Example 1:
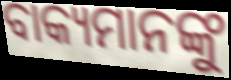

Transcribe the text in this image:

ବାକ୍ୟମାନଙ୍କୁ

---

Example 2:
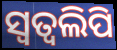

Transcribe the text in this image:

ସ୍ୱତ୍ୱଲିପି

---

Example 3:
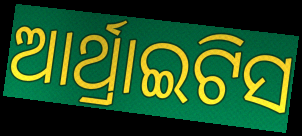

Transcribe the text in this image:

ଆର୍ଥ୍ରାଇଟିସ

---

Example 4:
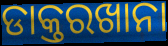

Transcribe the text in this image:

ଡାକ୍ତରଖାନା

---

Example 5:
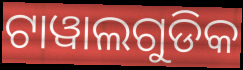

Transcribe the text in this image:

ଟାୱାଲଗୁଡିକ